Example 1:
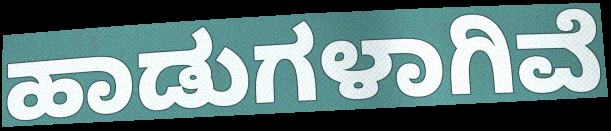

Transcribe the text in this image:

ಹಾಡುಗಳಾಗಿವೆ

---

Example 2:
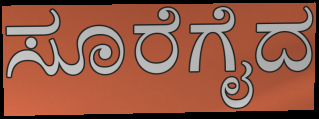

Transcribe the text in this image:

ಸೂರೆಗೈದ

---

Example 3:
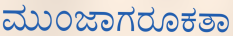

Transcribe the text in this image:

ಮುಂಜಾಗರೂಕತಾ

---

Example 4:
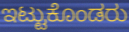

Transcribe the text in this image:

ಇಟ್ಟುಕೊಂಡರು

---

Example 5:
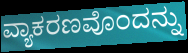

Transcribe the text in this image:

ವ್ಯಾಕರಣವೊಂದನ್ನು